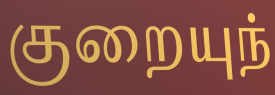
குறையுந்